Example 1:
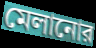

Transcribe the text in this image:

মেলানোর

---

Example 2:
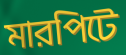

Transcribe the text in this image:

মারপিটে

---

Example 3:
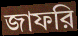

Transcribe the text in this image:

জাফরি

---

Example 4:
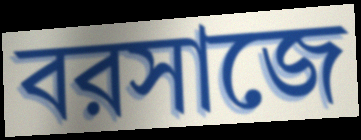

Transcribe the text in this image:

বরসাজে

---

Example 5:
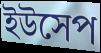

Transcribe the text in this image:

ইউসেপ